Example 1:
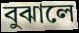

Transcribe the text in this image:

বুঝালে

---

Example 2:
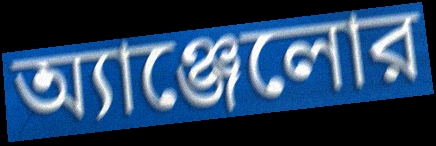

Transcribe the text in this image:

অ্যাঞ্জেলোর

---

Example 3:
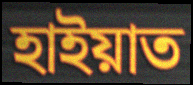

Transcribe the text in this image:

হাইয়াত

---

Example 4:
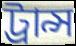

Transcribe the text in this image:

ট্রান্স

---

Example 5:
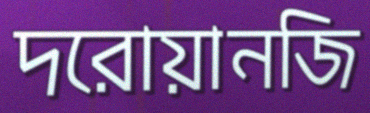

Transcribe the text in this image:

দরোয়ানজি